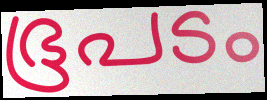
ഭൂപടം